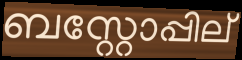
ബസ്റ്റോപ്പില്